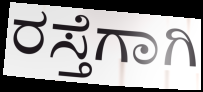
ರಸ್ತೆಗಾಗಿ